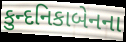
કુન્દનિકાબેનના